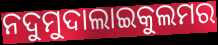
ନଦୁମୁଦାଲାଇକୁଲମର